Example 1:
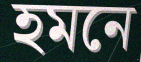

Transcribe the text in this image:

হমনে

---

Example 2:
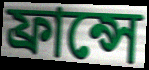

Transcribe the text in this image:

ফ্রান্সে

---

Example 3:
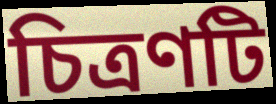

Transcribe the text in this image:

চিত্রণটি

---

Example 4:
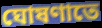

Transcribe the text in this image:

ঘোষণাতে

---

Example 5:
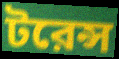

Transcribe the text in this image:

টরেন্স